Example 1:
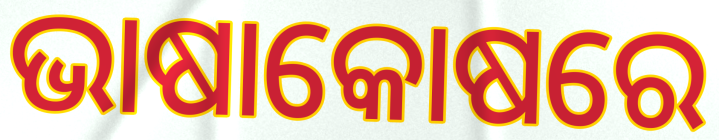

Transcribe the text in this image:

ଭାଷାକୋଷରେ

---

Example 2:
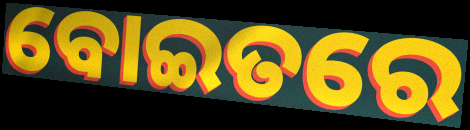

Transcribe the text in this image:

ବୋଇତରେ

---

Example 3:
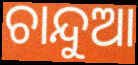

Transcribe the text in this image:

ଚାନ୍ଦୁଆ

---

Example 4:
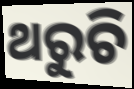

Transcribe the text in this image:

ଥରୁଚି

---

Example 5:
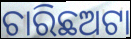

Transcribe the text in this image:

ଚାରିଛଅଟା